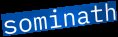
sominath